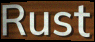
Rust